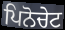
ਪਿਨੋਚੇਟ